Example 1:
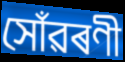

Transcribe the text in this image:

সোঁৱৰণী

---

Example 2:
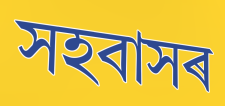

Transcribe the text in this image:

সহবাসৰ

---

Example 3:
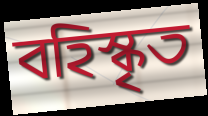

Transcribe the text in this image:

বহিস্কৃত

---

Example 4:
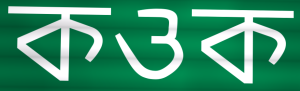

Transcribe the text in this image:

কওক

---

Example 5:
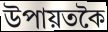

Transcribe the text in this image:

উপায়তকৈ